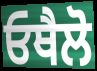
ਓਥੈਲੋ